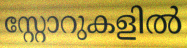
സ്റ്റോറുകളിൽ